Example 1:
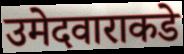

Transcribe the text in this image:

उमेदवाराकडे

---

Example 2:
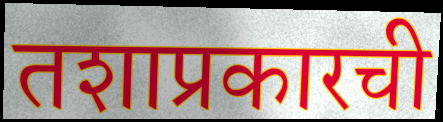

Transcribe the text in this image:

तशाप्रकारची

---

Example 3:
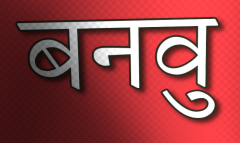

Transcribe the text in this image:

बनवु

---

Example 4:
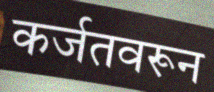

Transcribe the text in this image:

कर्जतवरून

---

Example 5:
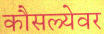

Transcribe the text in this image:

कौसल्येवर